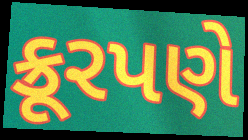
ક્રૂરપણે